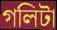
গলিটা